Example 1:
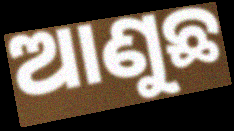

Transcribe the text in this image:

ଆଣୁଛ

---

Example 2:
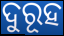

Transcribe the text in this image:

ଦୁରୂହ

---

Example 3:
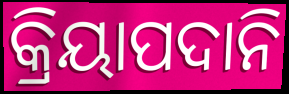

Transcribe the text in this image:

କ୍ରିୟାପଦାନି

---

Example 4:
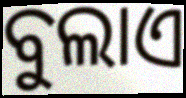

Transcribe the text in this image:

ବୁଲାଏ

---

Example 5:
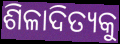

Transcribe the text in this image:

ଶିଳାଦିତ୍ୟକୁ